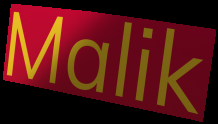
Malik